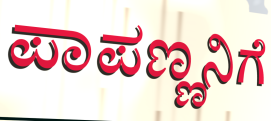
ಪಾಪಣ್ಣನಿಗೆ